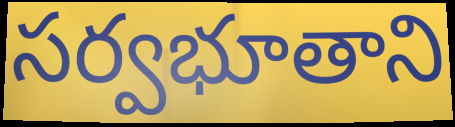
సర్వభూతాని